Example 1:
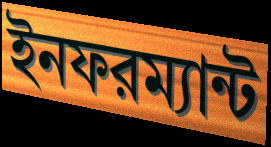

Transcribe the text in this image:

ইনফরম্যান্ট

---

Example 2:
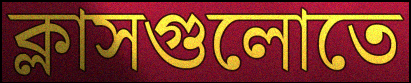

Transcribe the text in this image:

ক্লাসগুলোতে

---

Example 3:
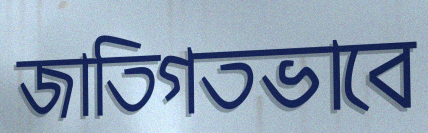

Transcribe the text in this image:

জাতিগতভাবে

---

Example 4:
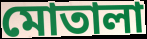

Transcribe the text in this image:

মোতালা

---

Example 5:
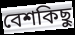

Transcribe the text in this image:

বেশকিছু